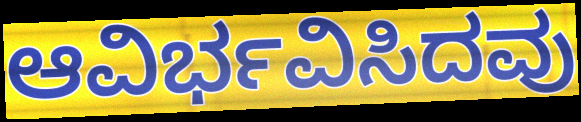
ಆವಿರ್ಭವಿಸಿದವು